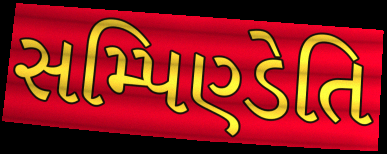
સમ્પિણ્ડેતિ